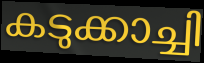
കടുക്കാച്ചി